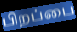
பிறப்பை